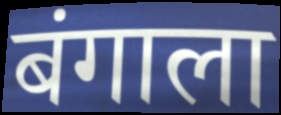
बंगाला